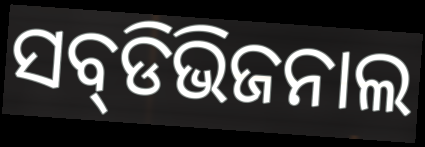
ସବ୍‌ଡିଭିଜନାଲ